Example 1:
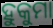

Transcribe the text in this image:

ହୁକୁମା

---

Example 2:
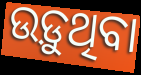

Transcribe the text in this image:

ଉଡ଼ୁଥିବା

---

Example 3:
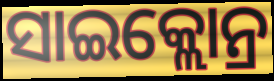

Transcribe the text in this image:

ସାଇକ୍ଲୋନ୍ର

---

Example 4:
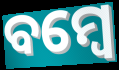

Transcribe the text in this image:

ବମ୍ୱେ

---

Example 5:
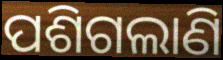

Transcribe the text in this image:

ପଶିଗଲାଣି